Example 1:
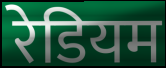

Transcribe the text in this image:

रेडियम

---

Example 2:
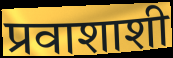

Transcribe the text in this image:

प्रवाशाशी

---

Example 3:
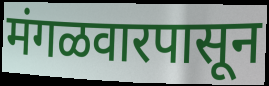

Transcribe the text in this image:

मंगळवारपासून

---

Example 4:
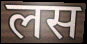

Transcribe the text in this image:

लस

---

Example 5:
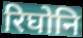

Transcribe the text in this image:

रिघोनि